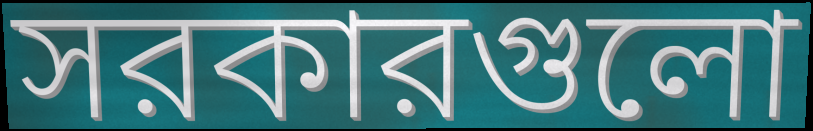
সরকারগুলো